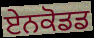
ਏਨਕੋਡਡ